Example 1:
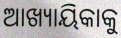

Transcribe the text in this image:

ଆଖ୍ୟାୟିକାକୁ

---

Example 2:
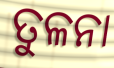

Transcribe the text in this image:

ତୁଳନା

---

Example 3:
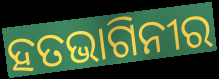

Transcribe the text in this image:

ହତଭାଗିନୀର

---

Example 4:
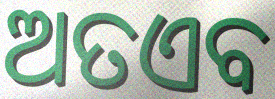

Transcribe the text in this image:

ଅତଏବ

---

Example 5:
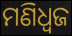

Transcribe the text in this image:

ମଣିଧ୍ୱଜ